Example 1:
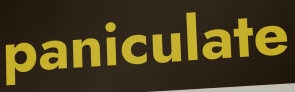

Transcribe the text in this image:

paniculate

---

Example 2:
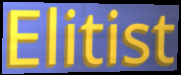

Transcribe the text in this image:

Elitist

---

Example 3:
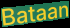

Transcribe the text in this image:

Bataan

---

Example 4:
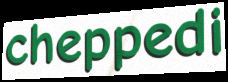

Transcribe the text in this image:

cheppedi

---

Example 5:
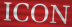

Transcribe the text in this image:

ICON